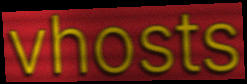
vhosts